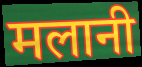
मलानी